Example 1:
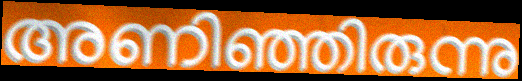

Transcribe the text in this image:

അണിഞ്ഞിരുന്നു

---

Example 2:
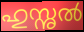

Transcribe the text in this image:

ഹുസ്നുൽ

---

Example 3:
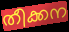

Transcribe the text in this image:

തീക്കന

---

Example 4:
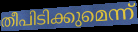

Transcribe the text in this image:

തീപിടിക്കുമെന്ന്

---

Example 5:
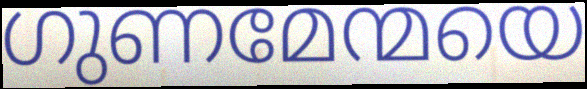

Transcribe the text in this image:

ഗുണമേന്മയെ